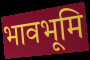
भावभूमि